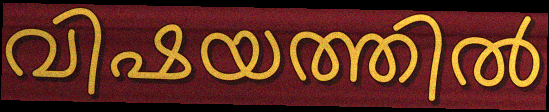
വിഷയത്തിൽ